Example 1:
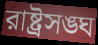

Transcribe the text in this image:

রাষ্ট্রসঙ্ঘ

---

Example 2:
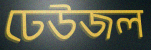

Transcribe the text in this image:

ঢেউজল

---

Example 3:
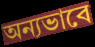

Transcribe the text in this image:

অন্যভাবে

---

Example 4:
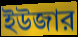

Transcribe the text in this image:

ইউজার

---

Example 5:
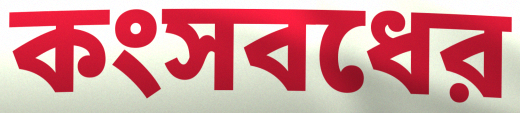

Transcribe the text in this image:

কংসবধের